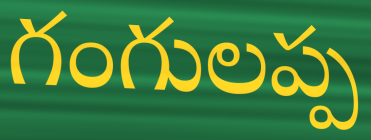
గంగులప్ప